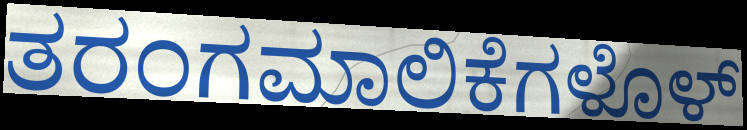
ತರಂಗಮಾಲಿಕೆಗಳೊಳ್